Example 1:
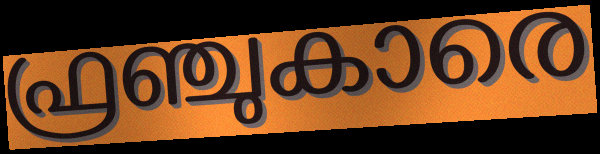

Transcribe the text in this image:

ഫ്രഞ്ചുകാരെ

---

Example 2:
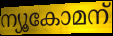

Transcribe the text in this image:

ന്യൂകോമന്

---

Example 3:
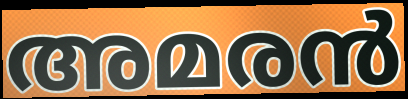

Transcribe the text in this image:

അമരൻ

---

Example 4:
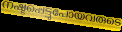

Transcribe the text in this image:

നഷ്ടപ്പെട്ടുപോയവരുടെ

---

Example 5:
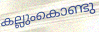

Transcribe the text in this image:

കല്ലുംകൊണ്ടു